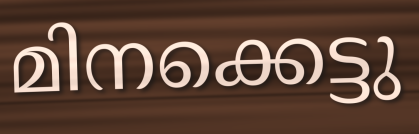
മിനക്കെട്ടു